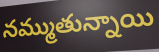
నమ్ముతున్నాయి